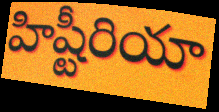
హిష్టీరియా